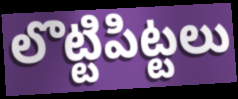
లొట్టిపిట్టలు